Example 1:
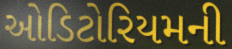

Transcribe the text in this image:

ઓડિટોરિયમની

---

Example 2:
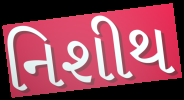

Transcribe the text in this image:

નિશીથ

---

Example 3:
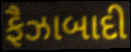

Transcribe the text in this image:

ફૈઝાબાદી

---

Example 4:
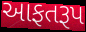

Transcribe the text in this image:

આફતરૂપ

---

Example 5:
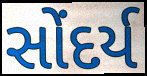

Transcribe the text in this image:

સોંદર્ય